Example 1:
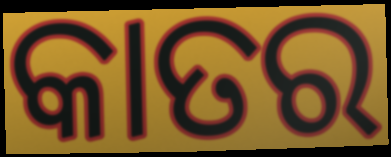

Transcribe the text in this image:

କାତର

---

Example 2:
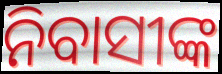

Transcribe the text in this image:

ନିବାସୀଙ୍କ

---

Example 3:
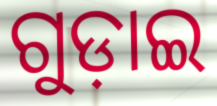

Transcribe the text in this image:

ଗୁଡ଼ାଇ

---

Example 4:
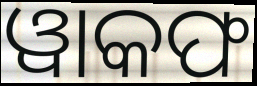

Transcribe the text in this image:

ୱାକଫ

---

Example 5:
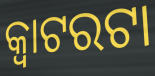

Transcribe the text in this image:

କ୍ଵାଟରଟା